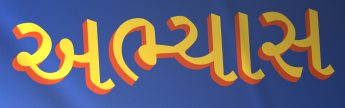
અભ્યાસ